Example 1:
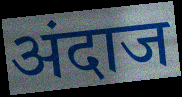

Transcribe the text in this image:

अंदाज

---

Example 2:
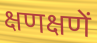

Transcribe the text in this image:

क्षणक्षणें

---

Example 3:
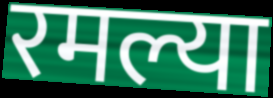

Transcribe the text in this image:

रमल्या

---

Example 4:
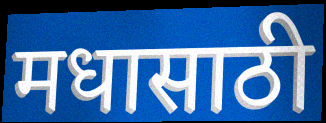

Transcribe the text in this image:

मधासाठी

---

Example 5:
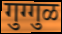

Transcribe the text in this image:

गुग्गुळ